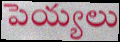
పెయ్యలు